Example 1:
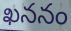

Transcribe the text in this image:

ఖననం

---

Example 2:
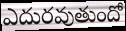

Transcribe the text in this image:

ఎదురవుతుందో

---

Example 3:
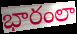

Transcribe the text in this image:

భారంలా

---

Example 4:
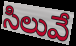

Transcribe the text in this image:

సిలువే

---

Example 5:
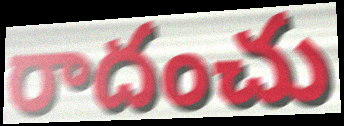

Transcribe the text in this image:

రాదంచు